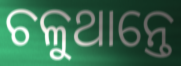
ଚଳୁଥାନ୍ତେ